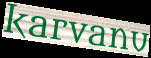
karvanu